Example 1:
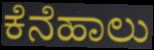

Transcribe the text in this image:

ಕೆನೆಹಾಲು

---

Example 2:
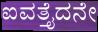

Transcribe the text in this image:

ಐವತ್ತೈದನೇ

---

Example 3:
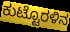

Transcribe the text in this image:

ಕುಟ್ಟೊರಳಿನ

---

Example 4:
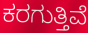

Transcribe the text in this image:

ಕರಗುತ್ತಿವೆ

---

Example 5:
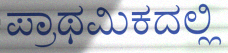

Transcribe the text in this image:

ಪ್ರಾಥಮಿಕದಲ್ಲಿ